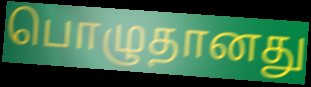
பொழுதானது